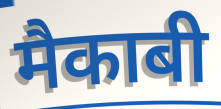
मैकाबी